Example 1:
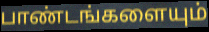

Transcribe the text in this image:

பாண்டங்களையும்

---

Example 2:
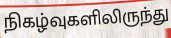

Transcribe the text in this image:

நிகழ்வுகளிலிருந்து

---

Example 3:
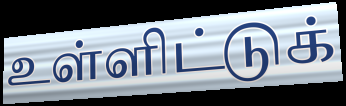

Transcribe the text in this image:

உள்ளிட்டுக்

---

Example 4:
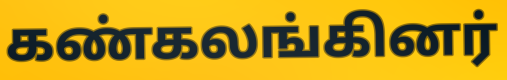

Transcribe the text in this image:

கண்கலங்கினர்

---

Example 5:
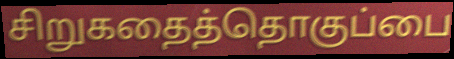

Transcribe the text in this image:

சிறுகதைத்தொகுப்பை